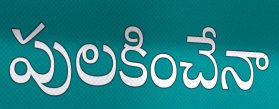
పులకించేనా